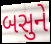
બસુને